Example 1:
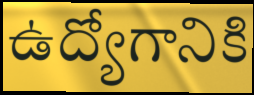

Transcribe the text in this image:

ఉద్యోగానికి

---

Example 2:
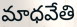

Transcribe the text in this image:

మాధవేతి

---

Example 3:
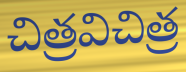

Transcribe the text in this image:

చిత్రవిచిత్ర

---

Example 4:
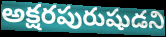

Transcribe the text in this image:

అక్షరపురుషుడని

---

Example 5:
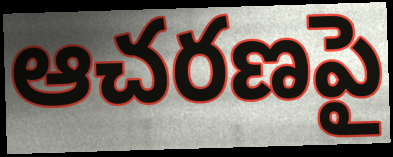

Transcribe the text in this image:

ఆచరణపై